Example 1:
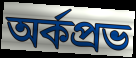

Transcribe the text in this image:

অর্কপ্রভ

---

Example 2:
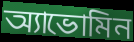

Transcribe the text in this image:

অ্যাভোমিন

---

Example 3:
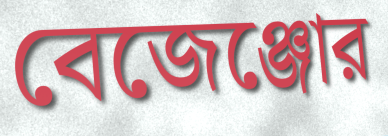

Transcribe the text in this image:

বেজেঞ্জোর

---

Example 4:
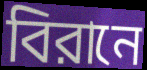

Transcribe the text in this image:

বিরানে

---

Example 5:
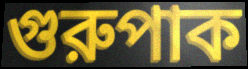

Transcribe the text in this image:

গুরুপাক